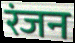
रंजन